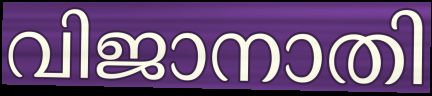
വിജാനാതി